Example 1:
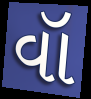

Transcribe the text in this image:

વૉ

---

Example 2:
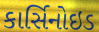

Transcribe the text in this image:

કાર્સિનોઇડ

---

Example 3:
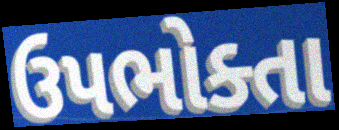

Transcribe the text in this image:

ઉપભોક્તા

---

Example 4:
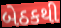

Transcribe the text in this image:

બેઠકથી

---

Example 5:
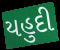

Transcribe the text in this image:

યહુદી